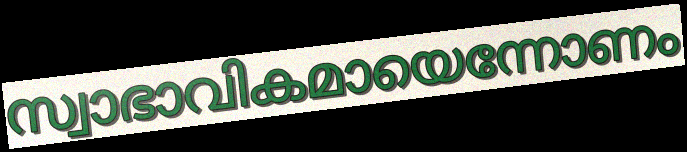
സ്വാഭാവികമായെന്നോണം